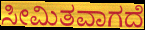
ಸೀಮಿತವಾಗದೆ